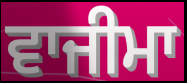
ਵਾਜੀਮਾ